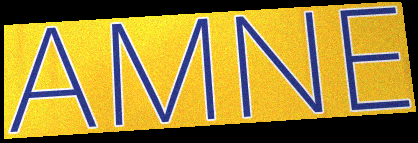
AMNE